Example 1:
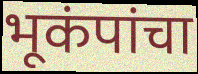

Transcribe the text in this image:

भूकंपांचा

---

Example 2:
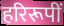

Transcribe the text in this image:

हरिरूपीं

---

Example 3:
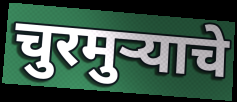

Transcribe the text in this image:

चुरमुऱ्याचे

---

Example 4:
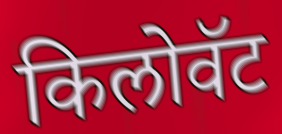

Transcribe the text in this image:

किलोवॅट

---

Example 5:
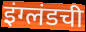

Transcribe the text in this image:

इंग्लंडची